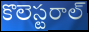
కొలెస్టరాల్